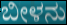
ಬೀಳನು